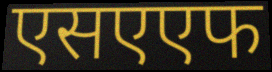
एसएएफ